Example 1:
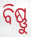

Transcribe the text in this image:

ବିଷ୍ଣୁ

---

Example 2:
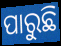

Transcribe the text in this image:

ପାରୁଛି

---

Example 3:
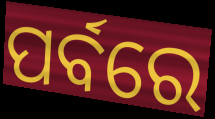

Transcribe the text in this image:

ପର୍ବରେ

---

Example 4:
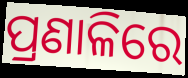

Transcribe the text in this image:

ପ୍ରଣାଳିରେ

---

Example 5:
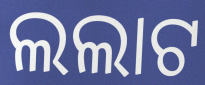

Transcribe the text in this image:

ଲଲାଟ